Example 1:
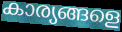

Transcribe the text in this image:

കാര്യങ്ങളെ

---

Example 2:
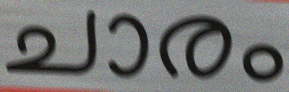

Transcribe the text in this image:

ചാരം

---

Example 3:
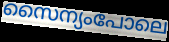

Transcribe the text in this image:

സൈന്യംപോലെ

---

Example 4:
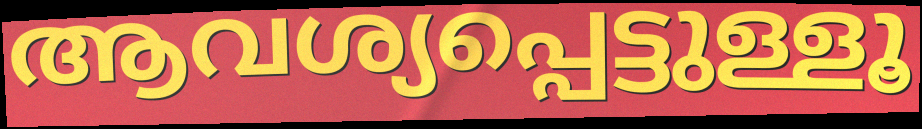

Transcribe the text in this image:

ആവശ്യപ്പെട്ടുള്ളൂ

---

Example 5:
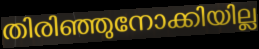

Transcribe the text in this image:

തിരിഞ്ഞുനോക്കിയില്ല